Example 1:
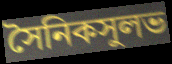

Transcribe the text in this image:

সৈনিকসুলভ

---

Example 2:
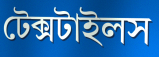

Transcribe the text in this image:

টেক্সটাইলস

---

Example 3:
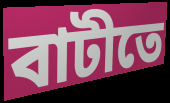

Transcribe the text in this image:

বাটীতে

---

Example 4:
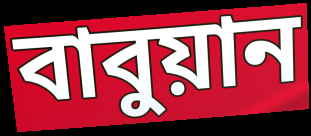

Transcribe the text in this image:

বাবুয়ান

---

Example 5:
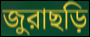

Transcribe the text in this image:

জুরাছড়ি